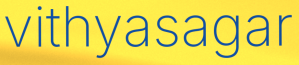
vithyasagar